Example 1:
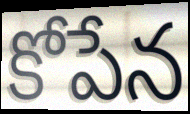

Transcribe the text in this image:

కోపేన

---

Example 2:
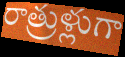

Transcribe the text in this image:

రాత్రుళ్లుగా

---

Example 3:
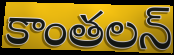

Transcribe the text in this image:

కాంతలన్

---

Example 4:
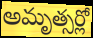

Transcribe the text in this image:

అమృత్సర్లో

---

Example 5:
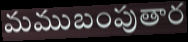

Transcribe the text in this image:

మముబంపుతార